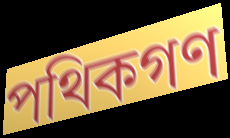
পথিকগণ